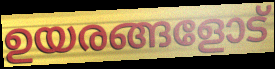
ഉയരങ്ങളോട്